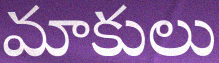
మాకులు